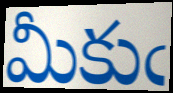
మీకుఁ